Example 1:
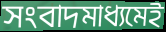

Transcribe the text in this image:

সংবাদমাধ্যমেই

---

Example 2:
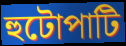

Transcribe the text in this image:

হুটোপাটি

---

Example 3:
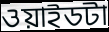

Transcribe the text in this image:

ওয়াইডটা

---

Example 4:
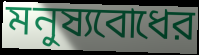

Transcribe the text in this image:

মনুষ্যবোধের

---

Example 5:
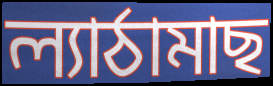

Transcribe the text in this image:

ল্যাঠামাছ